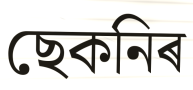
ছেকনিৰ